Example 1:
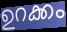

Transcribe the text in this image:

ഉറക്കം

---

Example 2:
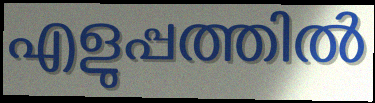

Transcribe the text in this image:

എളുപ്പത്തിൽ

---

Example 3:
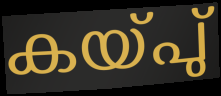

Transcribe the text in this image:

കയ്പു്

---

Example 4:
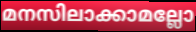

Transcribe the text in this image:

മനസിലാക്കാമല്ലോ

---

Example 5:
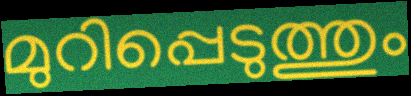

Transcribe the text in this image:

മുറിപ്പെടുത്തും